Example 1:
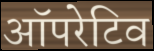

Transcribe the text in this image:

ऑपरेटिव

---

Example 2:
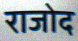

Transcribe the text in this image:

राजोद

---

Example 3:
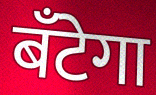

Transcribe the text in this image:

बँटेगा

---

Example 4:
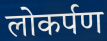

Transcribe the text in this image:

लोकर्पण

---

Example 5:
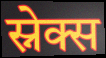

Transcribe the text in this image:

स्नेक्स